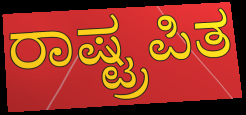
ರಾಷ್ಟ್ರಪಿತ